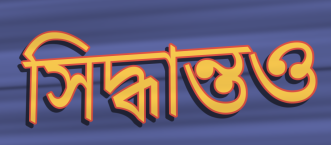
সিদ্ধান্তও